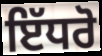
ਇੱਧਰੋ